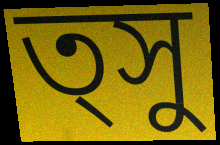
ত্সু